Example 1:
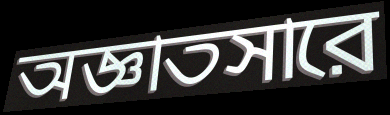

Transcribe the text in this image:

অজ্ঞাতসারে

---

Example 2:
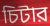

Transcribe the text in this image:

চিটার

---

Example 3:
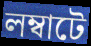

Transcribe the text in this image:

লম্বাটে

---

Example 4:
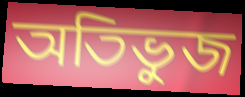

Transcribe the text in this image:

অতিভুজ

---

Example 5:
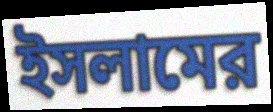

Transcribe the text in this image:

ইসলামের